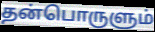
தன்பொருளும்